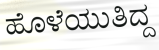
ಹೊಳೆಯುತಿದ್ದ